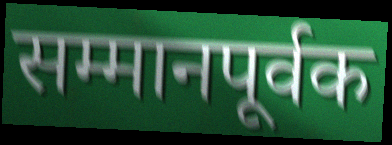
सम्मानपूर्वक